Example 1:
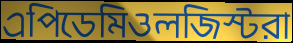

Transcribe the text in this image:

এপিডেমিওলজিস্টরা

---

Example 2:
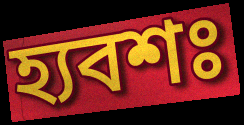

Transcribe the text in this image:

হ্যবশঃ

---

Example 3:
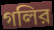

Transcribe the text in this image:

গলির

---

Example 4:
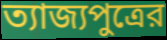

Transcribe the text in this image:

ত্যাজ্যপুত্রের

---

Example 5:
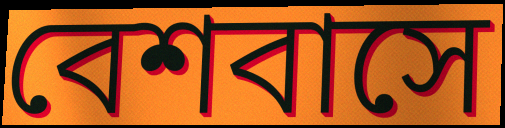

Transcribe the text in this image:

বেশবাসে